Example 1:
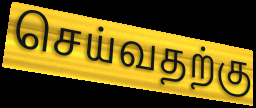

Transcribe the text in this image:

செய்வதற்கு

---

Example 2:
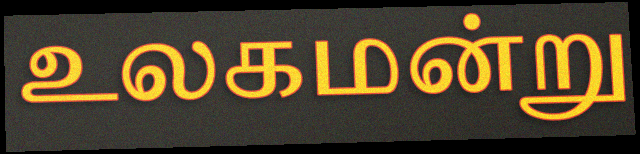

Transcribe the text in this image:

உலகமன்று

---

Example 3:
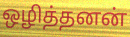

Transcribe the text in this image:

ஒழித்தனன்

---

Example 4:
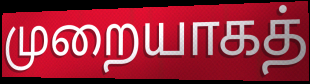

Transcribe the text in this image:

முறையாகத்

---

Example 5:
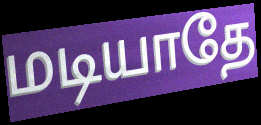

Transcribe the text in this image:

மடியாதே